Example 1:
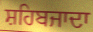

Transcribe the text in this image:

ਸ਼ਹਿਬਜਾਦਾ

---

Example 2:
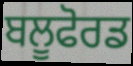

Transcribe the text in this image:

ਬਲੂਫੋਰਡ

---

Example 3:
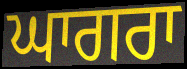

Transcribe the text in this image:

ਘਾਗਰਾ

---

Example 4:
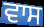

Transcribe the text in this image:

ਵਾਸ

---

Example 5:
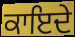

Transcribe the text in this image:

ਕਾਇਦੇ